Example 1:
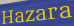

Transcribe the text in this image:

Hazara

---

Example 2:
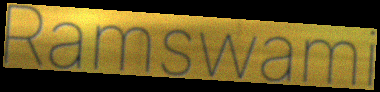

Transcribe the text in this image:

Ramswami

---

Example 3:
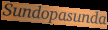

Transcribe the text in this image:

Sundopasunda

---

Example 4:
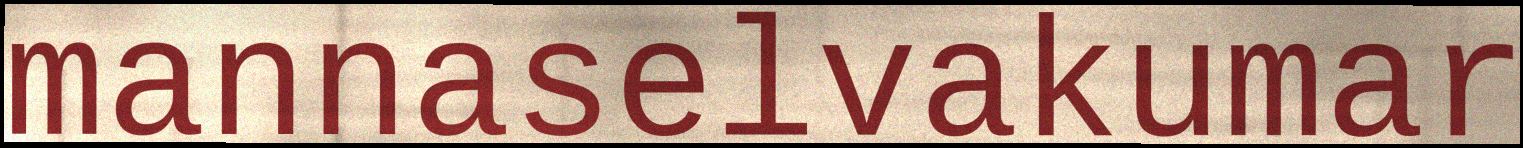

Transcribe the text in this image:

mannaselvakumar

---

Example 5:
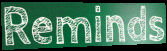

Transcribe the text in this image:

Reminds